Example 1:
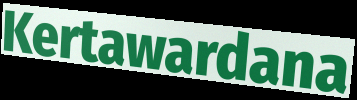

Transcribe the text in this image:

Kertawardana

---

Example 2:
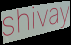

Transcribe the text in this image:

shivay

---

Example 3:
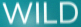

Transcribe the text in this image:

WILD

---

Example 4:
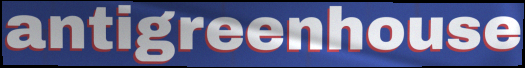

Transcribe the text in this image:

antigreenhouse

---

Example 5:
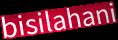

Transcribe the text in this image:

bisilahani